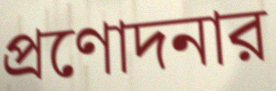
প্রণোদনার